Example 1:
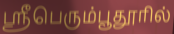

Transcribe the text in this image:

ஸ்ரீபெரும்பூதூரில்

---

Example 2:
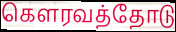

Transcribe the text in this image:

கௌரவத்தோடு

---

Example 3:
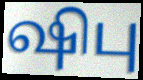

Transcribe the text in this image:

ஷிபு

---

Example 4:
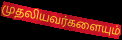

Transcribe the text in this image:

முதலியவர்களையும்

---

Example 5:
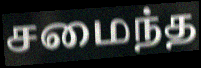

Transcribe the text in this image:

சமைந்த